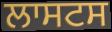
ਲਾਸਟਸ